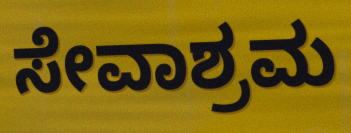
ಸೇವಾಶ್ರಮ